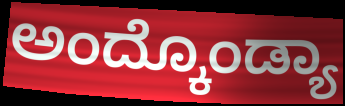
ಅಂದ್ಕೊಂಡ್ಯಾ